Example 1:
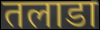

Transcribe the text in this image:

तलाडा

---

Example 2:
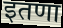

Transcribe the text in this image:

इतणा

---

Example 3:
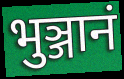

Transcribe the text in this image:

भुञ्जानं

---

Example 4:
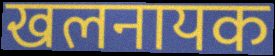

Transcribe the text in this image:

खलनायक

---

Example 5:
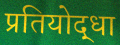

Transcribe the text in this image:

प्रतियोद्धा